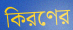
কিরণের